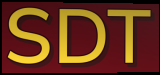
SDT